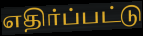
எதிர்ப்பட்டு